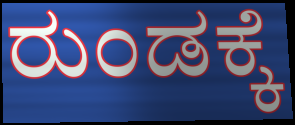
ರುಂಡಕ್ಕೆ